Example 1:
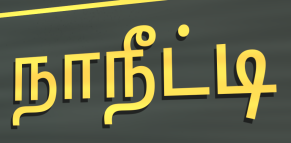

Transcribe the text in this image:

நாநீட்டி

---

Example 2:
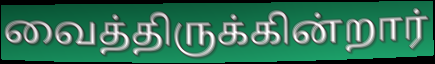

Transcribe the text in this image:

வைத்திருக்கின்றார்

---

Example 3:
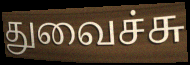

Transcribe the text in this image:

துவைச்சு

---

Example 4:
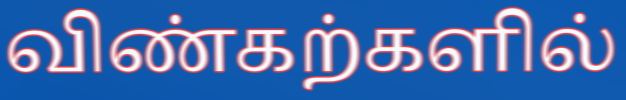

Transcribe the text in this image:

விண்கற்களில்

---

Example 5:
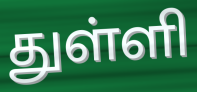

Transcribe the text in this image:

துள்ளி